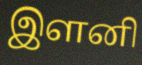
இளனி